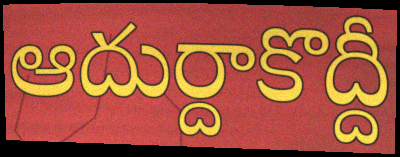
ఆదుర్దాకొద్దీ